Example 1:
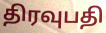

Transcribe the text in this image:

திரவுபதி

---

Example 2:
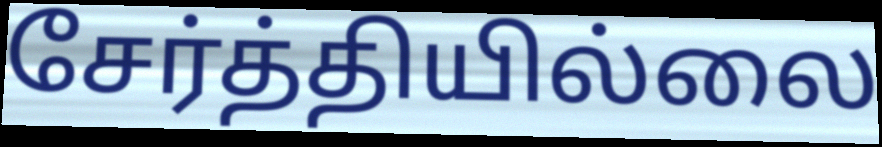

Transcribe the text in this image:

சேர்த்தியில்லை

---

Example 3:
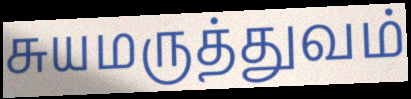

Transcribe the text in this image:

சுயமருத்துவம்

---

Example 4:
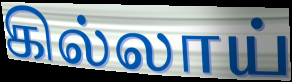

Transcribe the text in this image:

கில்லாய்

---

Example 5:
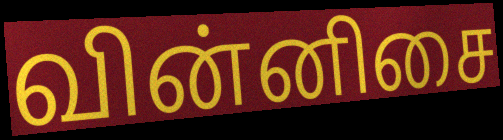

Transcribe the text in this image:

வின்னிசை